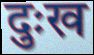
दुःख